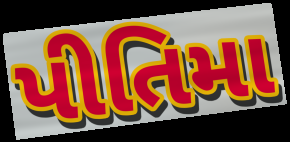
પીતિમા